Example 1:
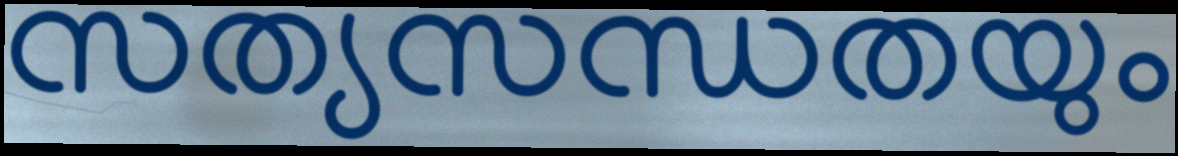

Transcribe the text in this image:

സത്യസന്ധതയും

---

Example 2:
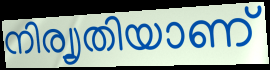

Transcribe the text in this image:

നിര്വൃതിയാണ്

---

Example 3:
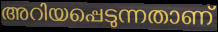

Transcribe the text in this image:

അറിയപ്പെടുന്നതാണ്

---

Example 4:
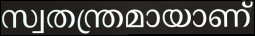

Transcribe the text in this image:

സ്വതന്ത്രമായാണ്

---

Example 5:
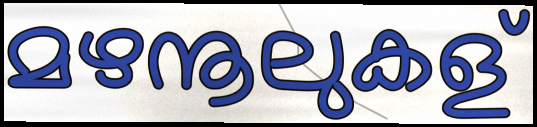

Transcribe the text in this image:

മഴനൂലുകള്